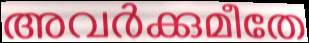
അവർക്കുമീതേ